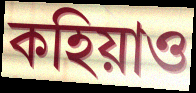
কহিয়াও